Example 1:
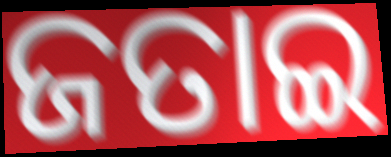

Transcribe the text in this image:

ଜତାଇ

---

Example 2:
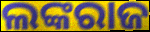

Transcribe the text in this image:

ଲଙ୍କରାଜ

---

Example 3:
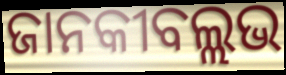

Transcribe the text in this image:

ଜାନକୀବଲ୍ଲଭ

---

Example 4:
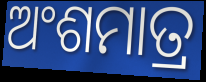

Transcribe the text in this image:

ଅଂଶମାତ୍ର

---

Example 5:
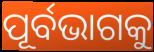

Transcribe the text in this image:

ପୂର୍ବଭାଗକୁ